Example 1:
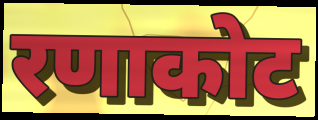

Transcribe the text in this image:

रणाकोट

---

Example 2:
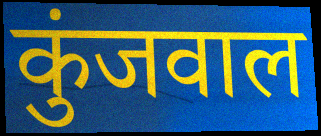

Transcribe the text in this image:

कुंजवाल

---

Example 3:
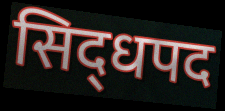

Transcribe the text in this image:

सिद्धपद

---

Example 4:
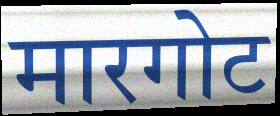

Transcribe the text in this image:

मारगोट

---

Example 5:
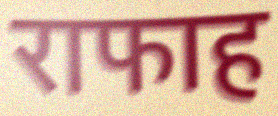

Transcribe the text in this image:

राफाह